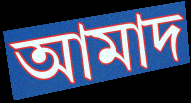
আমাদ